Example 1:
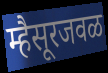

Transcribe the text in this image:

म्हैसूरजवळ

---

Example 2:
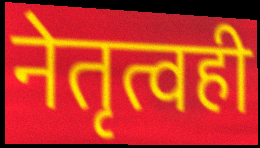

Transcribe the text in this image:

नेतृत्वही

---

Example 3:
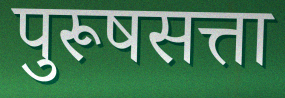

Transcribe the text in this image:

पुरूषसत्ता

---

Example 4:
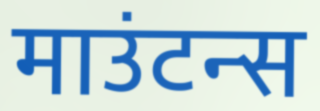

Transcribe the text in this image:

माउंटन्स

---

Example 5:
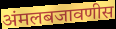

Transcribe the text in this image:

अंमलबजावणीस